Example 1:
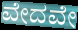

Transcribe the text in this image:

ವೇದವೇ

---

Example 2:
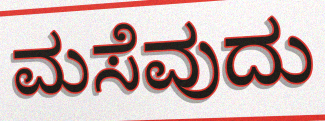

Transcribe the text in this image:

ಮಸೆವುದು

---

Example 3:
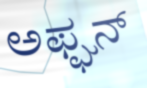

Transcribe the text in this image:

ಅಫ್ಘನ್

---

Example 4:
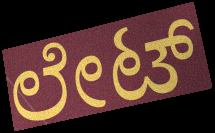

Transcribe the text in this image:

ಲೇಟ್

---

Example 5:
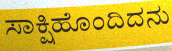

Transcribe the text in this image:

ಸಾಕ್ಷಿಹೊಂದಿದನು